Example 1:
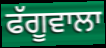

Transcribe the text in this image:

ਫੱਗੂਵਾਲਾ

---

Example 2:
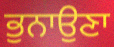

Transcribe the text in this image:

ਭੁਨਾਉਣਾ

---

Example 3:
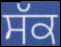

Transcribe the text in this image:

ਸੱਕ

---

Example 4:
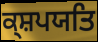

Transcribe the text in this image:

ਕ੍ਸ਼ਪਯਤਿ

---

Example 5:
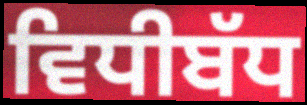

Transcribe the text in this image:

ਵਿਧੀਬੱਧ